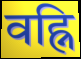
वह्नि